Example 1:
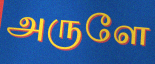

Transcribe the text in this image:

அருளே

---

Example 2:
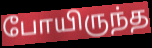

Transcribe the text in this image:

போயிருந்த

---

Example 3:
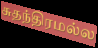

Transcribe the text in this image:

சுதந்திரமல்ல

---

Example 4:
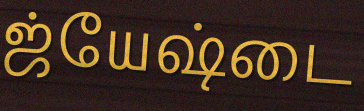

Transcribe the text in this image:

ஜ்யேஷ்டை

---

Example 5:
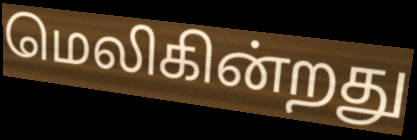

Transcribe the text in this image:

மெலிகின்றது